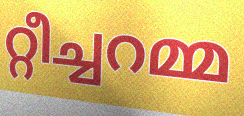
റ്റീച്ചറമ്മ